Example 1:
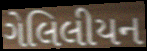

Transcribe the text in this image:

ગેલિલીયન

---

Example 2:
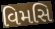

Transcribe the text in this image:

વિમસિ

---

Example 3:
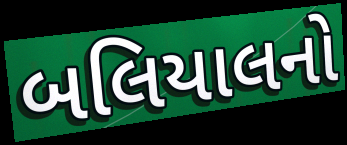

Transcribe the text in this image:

બલિયાલનો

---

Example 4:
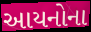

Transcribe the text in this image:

આયનોના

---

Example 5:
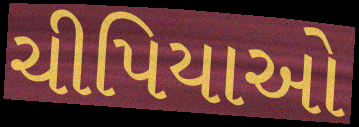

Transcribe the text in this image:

ચીપિયાઓ